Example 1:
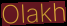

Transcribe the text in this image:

Olakh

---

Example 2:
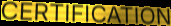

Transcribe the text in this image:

CERTIFICATION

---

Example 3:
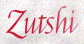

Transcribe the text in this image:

Zutshi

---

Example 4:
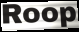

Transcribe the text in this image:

Roop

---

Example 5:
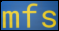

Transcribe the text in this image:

mfs